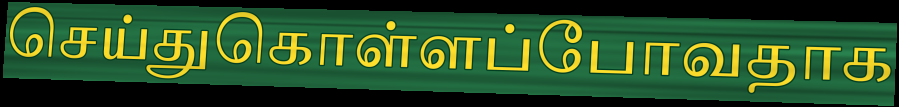
செய்துகொள்ளப்போவதாக